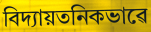
বিদ্য়ায়তনিকভাৱে